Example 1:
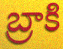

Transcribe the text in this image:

బ్రాకి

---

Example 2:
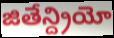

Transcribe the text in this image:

జితేన్ద్రియో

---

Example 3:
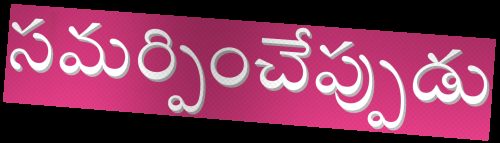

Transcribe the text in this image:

సమర్పించేప్పుడు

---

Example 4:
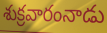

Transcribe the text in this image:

శుక్రవారంనాడు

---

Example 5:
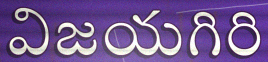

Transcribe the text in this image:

విజయగిరి